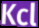
Kcl